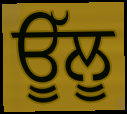
ਊੱਲੂ